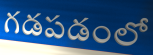
గడపడంలో